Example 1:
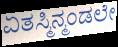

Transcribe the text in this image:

ಏತಸ್ಮಿನ್ಮಂಡಲೇ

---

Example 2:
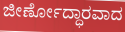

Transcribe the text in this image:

ಜೀರ್ಣೋದ್ಧಾರವಾದ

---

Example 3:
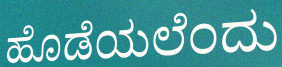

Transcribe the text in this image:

ಹೊಡೆಯಲೆಂದು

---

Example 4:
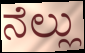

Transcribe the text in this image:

ನೆಲ್ಲು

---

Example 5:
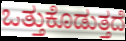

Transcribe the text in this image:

ಒತ್ತುಕೊಡುತ್ತದೆ